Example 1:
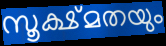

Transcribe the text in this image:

സൂക്ഷ്മതയും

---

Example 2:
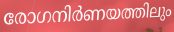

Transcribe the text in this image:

രോഗനിർണയത്തിലും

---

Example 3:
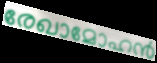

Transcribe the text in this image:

രേഖാമോഹൻ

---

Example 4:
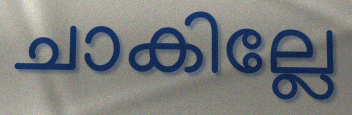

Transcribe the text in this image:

ചാകില്ലേ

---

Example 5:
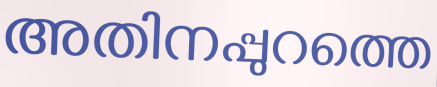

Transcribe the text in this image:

അതിനപ്പുറത്തെ